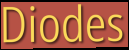
Diodes